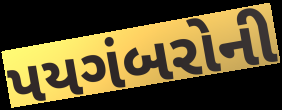
પયગંબરોની